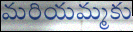
మరియమ్మకు